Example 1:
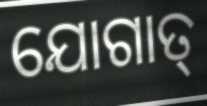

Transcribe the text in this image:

ଯୋଗାତ୍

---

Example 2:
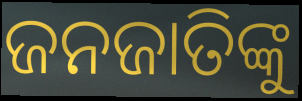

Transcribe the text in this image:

ଜନଜାତିଙ୍କୁ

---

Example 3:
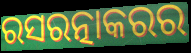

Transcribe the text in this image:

ରସରତ୍ନାକରର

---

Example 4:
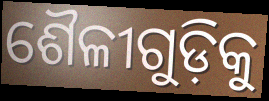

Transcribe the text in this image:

ଶୈଳୀଗୁଡ଼ିକୁ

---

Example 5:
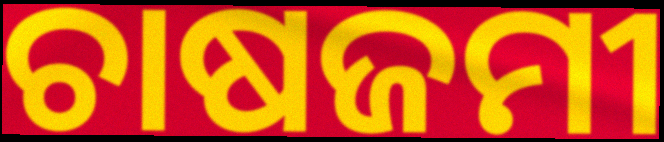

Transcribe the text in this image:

ଚାଷଜମୀ